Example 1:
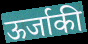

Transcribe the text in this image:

ऊर्जाकी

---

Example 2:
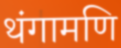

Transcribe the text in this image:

थंगामणि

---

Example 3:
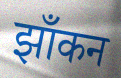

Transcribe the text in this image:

झाँकन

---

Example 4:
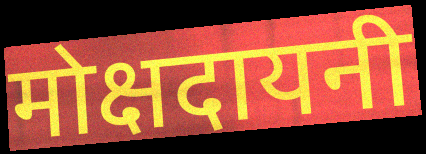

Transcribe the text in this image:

मोक्षदायनी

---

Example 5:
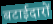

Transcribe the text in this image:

बटाईदारों